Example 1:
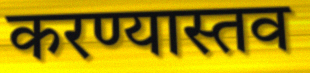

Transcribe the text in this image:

करण्यास्तव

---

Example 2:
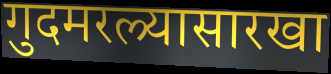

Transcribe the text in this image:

गुदमरल्यासारखा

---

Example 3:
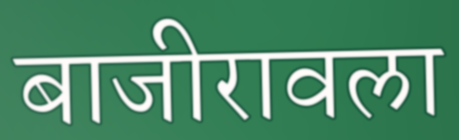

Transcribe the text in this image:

बाजीरावला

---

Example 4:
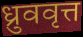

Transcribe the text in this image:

ध्रुववृत्त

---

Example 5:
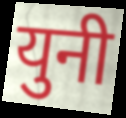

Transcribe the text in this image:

युनी